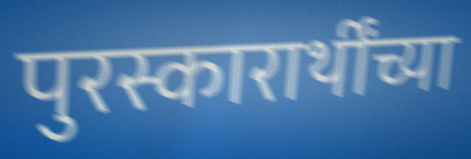
पुरस्कारार्थींच्या